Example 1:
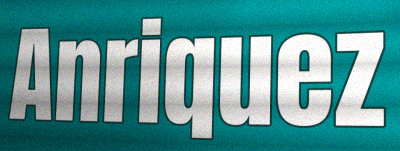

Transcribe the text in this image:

Anriquez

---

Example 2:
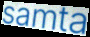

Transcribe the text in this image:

samta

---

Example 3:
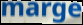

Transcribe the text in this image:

marge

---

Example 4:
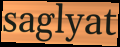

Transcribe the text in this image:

saglyat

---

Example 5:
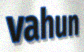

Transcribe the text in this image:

vahun